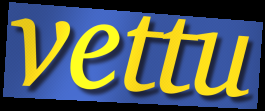
vettu